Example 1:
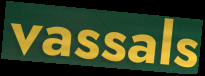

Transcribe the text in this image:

vassals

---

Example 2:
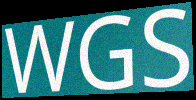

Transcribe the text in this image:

WGS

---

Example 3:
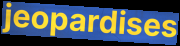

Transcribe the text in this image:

jeopardises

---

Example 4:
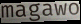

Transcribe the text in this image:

magawo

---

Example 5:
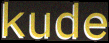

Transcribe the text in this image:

kude